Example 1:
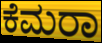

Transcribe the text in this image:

ಕೆಮರಾ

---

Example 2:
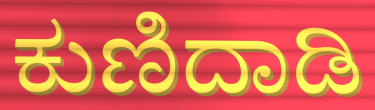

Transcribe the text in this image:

ಕುಣಿದಾಡಿ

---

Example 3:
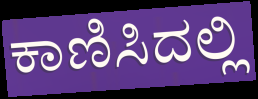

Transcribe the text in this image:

ಕಾಣಿಸಿದಲ್ಲಿ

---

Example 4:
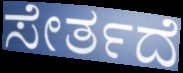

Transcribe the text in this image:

ಸೇರ್ತದೆ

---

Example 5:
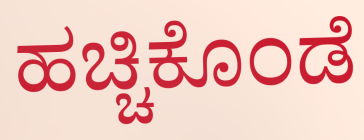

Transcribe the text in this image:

ಹಚ್ಚಿಕೊಂಡೆ